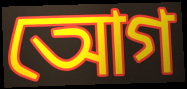
আেগ